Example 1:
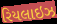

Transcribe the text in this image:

રિયલાઇઝ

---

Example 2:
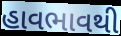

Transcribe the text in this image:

હાવભાવથી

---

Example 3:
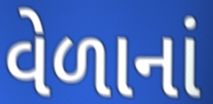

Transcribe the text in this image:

વેળાનાં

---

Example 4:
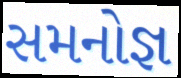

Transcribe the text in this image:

સમનોજ્ઞ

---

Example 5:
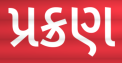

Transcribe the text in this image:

પ્રક્રણ